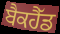
ਬੈਕਹੈੱਡ